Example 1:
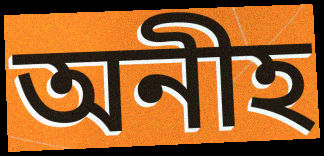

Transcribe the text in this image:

অনীহ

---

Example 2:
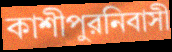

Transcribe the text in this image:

কাশীপুরনিবাসী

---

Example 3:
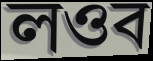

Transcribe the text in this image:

লওব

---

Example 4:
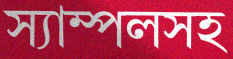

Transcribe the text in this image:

স্যাম্পলসহ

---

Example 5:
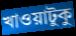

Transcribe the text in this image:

খাওয়াটুকু